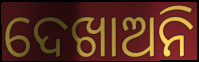
ଦେଖାଅନି